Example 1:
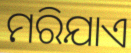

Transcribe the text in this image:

ମରିଯାଏ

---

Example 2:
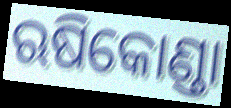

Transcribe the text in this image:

ଋଷିକୋଣ୍ଡା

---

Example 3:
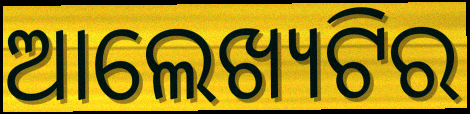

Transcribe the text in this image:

ଆଲେଖ୍ୟଟିର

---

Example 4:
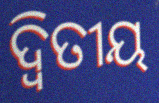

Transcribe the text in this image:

ଦ୍ୱିତୀୟ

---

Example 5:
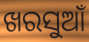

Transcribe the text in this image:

ଖରସୁଆଁ